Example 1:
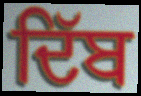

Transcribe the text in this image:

ਦਿੱਬ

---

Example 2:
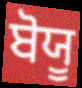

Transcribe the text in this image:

ਬੋਯੂ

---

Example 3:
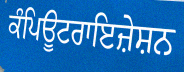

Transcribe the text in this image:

ਕੰਪਿਊਟਰਾਇਜ਼ੇਸ਼ਨ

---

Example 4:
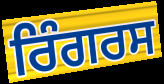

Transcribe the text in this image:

ਰਿੰਗਰਸ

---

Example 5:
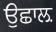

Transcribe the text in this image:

ਉਛਾਲ਼